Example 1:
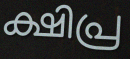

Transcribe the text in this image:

ക്ഷിപ്ര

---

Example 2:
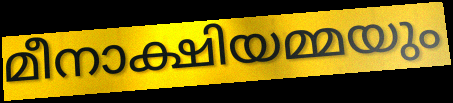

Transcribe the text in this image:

മീനാക്ഷിയമ്മയും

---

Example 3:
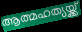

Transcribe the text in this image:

ആത്മഹത്യയ്ക്ക്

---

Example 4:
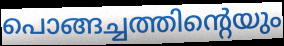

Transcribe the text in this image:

പൊങ്ങച്ചത്തിന്റെയും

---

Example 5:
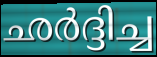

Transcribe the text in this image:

ഛർദ്ദിച്ച